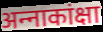
अन्नाकांक्षा